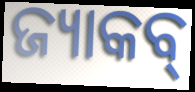
ଜ୍ୟାକବ୍